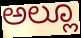
ಅಲ್ಲೂ